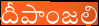
దీపాంజలి